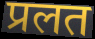
प्रलत